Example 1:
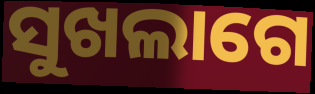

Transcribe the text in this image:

ସୁଖଲାଗେ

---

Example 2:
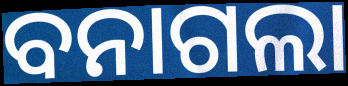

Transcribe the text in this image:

ବନାଗଲା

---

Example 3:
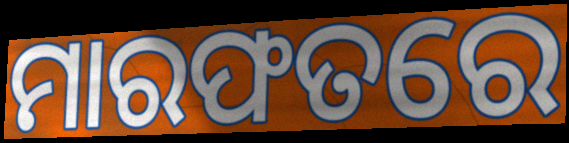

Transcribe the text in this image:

ମାରଫତରେ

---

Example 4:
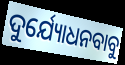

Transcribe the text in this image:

ଦୁର୍ଯ୍ୟୋଧନବାବୁ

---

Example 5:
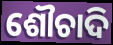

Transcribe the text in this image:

ଶୌଚାଦି